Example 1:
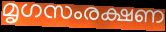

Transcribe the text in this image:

മൃഗസംരക്ഷണ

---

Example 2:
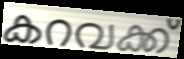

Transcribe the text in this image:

കറവക്ക്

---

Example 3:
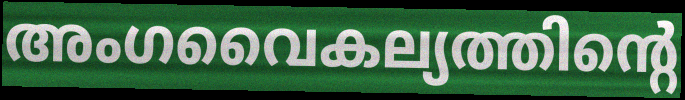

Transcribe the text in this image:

അംഗവൈകല്യത്തിന്റെ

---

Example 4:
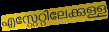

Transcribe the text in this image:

എസ്റ്റേറ്റിലേക്കുള്ള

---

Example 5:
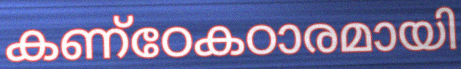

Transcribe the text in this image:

കണ്ഠേകഠാരമായി